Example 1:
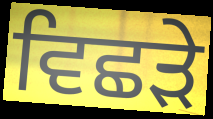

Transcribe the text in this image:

ਵਿਛੜੇ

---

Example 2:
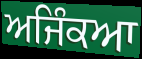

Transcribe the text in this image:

ਅਜਿੰਕਆ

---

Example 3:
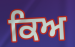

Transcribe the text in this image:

ਕਿਅ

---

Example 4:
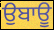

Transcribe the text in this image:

ਉਬਾਊ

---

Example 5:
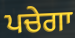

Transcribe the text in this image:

ਪਚੇਗਾ